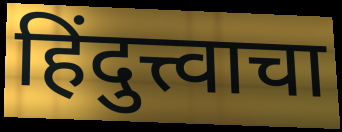
हिंदुत्त्वाचा